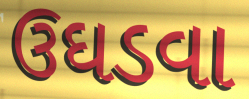
ઉઘડવા